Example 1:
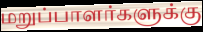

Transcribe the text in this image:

மறுப்பாளர்களுக்கு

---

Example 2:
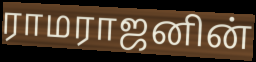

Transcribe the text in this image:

ராமராஜனின்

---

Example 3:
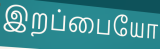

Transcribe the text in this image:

இறப்பையோ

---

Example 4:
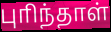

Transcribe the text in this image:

புரிந்தாள்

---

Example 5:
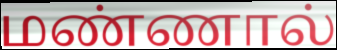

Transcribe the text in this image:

மண்ணால்